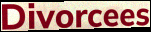
Divorcees